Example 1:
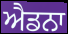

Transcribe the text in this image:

ਐਡਨਾ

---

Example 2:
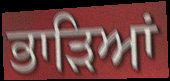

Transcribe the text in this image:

ਭਾੜਿਆਂ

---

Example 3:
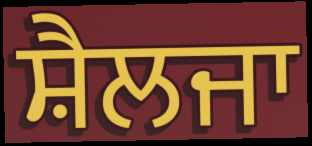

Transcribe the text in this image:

ਸ਼ੈਲਜਾ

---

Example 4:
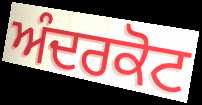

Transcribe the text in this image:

ਅੰਦਰਕੋਟ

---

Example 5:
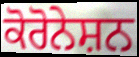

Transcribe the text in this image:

ਕੋਰੋਨੇਸ਼ਨ